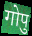
गोपु